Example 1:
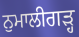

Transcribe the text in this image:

ਨੁਮਾਲੀਗੜ੍ਹ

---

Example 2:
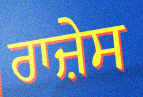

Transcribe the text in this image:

ਰਾਜ਼ੇਸ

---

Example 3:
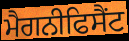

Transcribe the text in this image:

ਮੈਗਨੀਫਿਸੈਂਟ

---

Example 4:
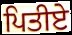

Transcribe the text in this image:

ਪਿਤੀਏ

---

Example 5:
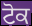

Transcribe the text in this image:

ਟੋਕ